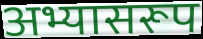
अभ्यासरूप